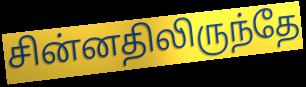
சின்னதிலிருந்தே